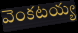
వెంకటయ్య